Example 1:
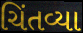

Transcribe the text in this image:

ચિંતવ્યા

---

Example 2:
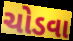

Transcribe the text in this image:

ચોડવા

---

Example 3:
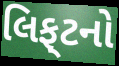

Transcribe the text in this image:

લિફ્‌ટનો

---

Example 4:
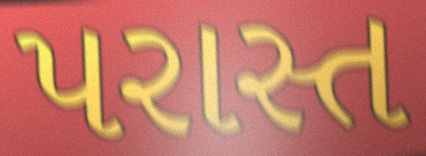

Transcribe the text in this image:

પરાસ્ત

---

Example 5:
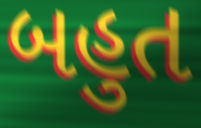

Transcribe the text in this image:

બહુત